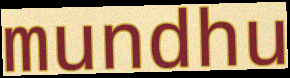
mundhu